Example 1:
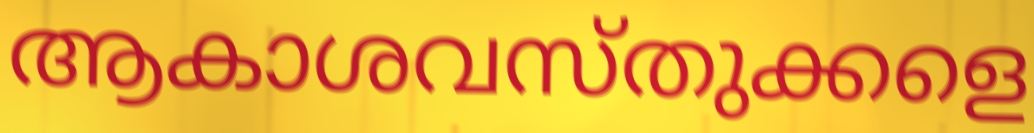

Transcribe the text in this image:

ആകാശവസ്തുക്കളെ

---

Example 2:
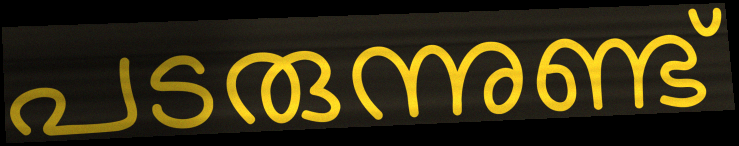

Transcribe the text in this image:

പടരുന്നുണ്ട്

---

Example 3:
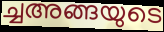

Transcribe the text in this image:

ച്ചഅങ്ങയുടെ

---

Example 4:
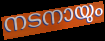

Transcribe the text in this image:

നടനായും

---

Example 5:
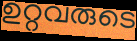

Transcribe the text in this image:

ഉറ്റവരുടെ